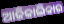
ଆଜିକାଲିକାର